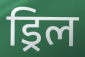
ड्रिल